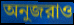
অনুজরাও